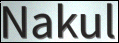
Nakul